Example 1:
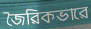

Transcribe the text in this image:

জৈৱিকভাৱে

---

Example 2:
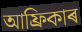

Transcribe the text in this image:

আফ্ৰিকাৰ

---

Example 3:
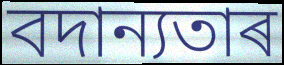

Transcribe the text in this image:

বদান্যতাৰ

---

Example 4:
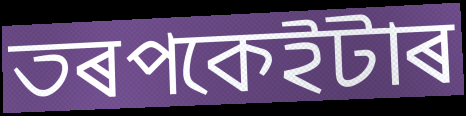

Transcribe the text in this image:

তৰপকেইটাৰ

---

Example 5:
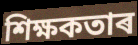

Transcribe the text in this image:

শিক্ষকতাৰ